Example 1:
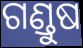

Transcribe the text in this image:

ଗଣ୍ଡୁଷ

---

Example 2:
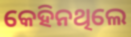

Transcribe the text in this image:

କେହିନଥିଲେ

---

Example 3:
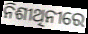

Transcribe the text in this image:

ନିଶୀଥିନୀରେ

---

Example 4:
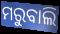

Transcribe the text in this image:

ମରୁବାଲି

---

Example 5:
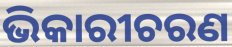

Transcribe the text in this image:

ଭିକାରୀଚରଣ